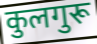
कुलगुरू